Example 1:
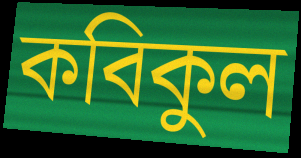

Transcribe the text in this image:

কবিকুল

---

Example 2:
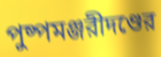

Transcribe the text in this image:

পুষ্পমঞ্জরীদণ্ডের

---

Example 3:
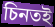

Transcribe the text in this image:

চিনতই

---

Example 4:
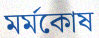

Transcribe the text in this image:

মর্মকোষ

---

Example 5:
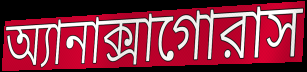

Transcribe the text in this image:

অ্যানাক্সাগোরাস